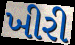
ખીરી